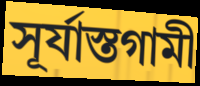
সূর্যাস্তগামী